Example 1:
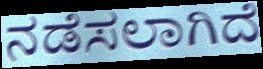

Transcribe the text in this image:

ನಡೆಸಲಾಗಿದೆ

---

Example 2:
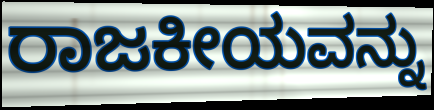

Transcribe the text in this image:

ರಾಜಕೀಯವನ್ನು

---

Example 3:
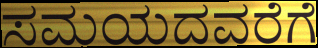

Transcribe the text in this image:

ಸಮಯದವರೆಗೆ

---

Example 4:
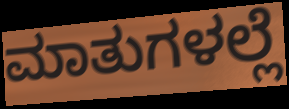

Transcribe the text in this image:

ಮಾತುಗಳಲ್ಲೆ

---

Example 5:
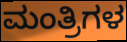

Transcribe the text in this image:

ಮಂತ್ರಿಗಳ